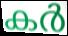
കർ